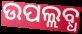
ଉପଲ୍ଲବ୍ଧ